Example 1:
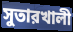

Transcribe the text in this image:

সুতারখালী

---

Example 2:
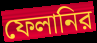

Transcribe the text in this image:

ফেলানির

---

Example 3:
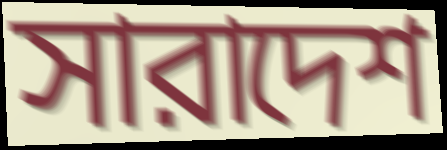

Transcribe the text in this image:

সারাদেশ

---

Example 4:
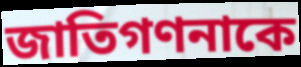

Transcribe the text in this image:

জাতিগণনাকে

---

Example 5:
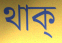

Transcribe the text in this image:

থাক্